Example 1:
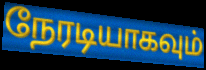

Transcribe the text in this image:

நேரடியாகவும்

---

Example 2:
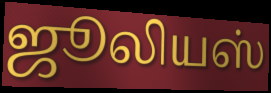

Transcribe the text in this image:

ஜூலியஸ்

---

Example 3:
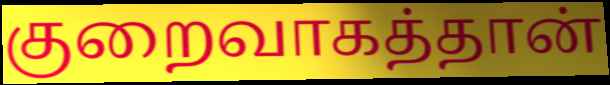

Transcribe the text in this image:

குறைவாகத்தான்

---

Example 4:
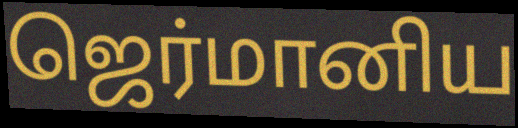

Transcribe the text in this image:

ஜெர்மானிய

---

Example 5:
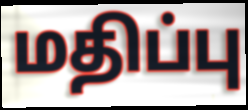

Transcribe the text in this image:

மதிப்பு